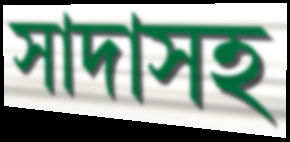
সাদাসহ